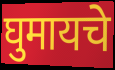
घुमायचे